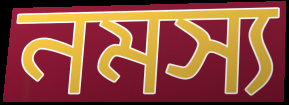
নমস্য